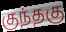
குந்தகு